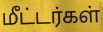
மீட்டர்கள்